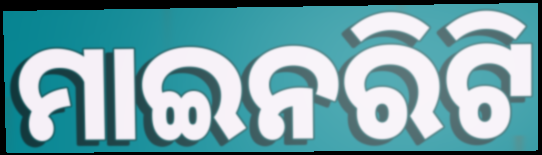
ମାଇନରିଟି